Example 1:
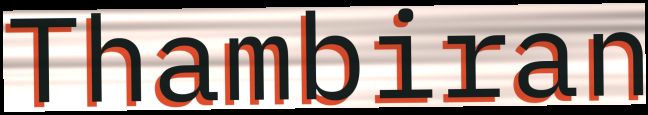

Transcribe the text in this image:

Thambiran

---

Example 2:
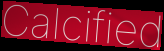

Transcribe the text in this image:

Calcified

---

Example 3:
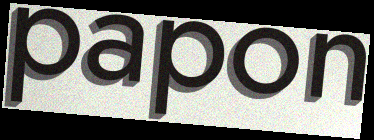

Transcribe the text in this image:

papon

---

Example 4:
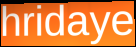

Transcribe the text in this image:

hridaye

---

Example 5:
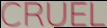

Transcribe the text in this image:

CRUEL